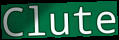
Clute